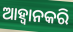
ଆହ୍ୱାନକରି